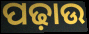
ପଢ଼ାଉ